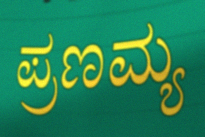
ಪ್ರಣಮ್ಯ